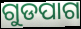
ଗୁଡପାଗ